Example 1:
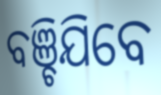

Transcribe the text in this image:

ବଞ୍ଚିଯିବେ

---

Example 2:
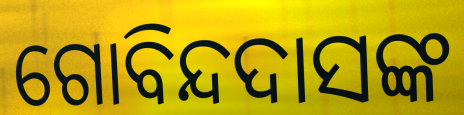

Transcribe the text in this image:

ଗୋବିନ୍ଦଦାସଙ୍କ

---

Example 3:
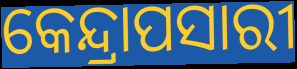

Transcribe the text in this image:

କେନ୍ଦ୍ରାପସାରୀ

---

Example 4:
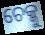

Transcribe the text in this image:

ଚେକ୍କୁ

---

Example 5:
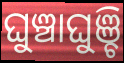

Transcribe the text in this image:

ଘୁଞ୍ଚାଘୁଞ୍ଚି